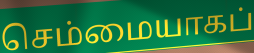
செம்மையாகப்